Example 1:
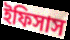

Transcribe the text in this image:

ইফিসাস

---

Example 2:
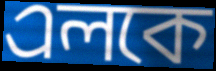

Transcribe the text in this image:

এলকে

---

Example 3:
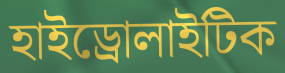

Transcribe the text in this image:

হাইড্রোলাইটিক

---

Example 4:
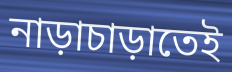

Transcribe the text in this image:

নাড়াচাড়াতেই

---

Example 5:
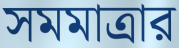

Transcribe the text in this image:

সমমাত্রার